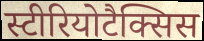
स्टीरियोटैक्सिस